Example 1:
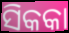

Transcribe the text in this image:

ସିକକା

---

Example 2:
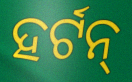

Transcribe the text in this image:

ହର୍ଟନ୍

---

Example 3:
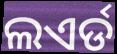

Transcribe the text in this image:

ଲଏର୍ଡ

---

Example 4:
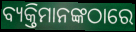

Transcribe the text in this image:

ବ୍ୟକ୍ତିମାନଙ୍କଠାରେ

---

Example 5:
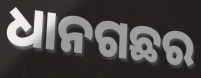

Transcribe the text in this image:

ଧାନଗଛର